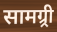
सामग्र्री